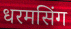
धरमसिंग